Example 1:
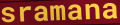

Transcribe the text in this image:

sramana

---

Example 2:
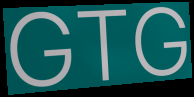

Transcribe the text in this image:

GTG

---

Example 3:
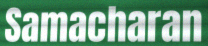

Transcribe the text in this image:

Samacharan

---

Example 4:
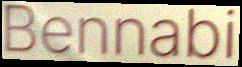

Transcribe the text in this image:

Bennabi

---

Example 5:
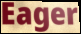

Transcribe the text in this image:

Eager